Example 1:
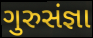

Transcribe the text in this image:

ગુરુસંજ્ઞા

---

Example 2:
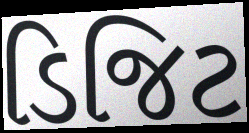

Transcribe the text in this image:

ડિજિટ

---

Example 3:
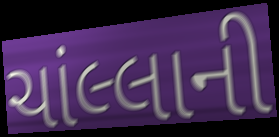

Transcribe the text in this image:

ચાંલ્લાની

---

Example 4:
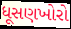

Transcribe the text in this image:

ધૂસણખોરો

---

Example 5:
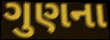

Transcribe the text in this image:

ગુણના